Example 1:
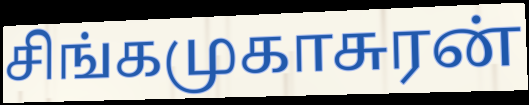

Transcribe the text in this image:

சிங்கமுகாசுரன்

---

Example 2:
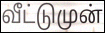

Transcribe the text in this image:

வீட்டுமுன்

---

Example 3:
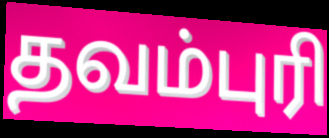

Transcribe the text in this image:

தவம்புரி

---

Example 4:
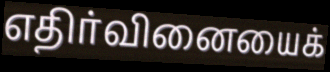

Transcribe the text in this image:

எதிர்வினையைக்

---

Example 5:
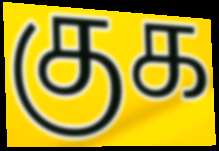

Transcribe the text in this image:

குக